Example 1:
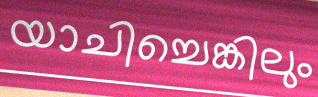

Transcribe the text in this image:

യാചിച്ചെങ്കിലും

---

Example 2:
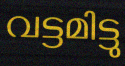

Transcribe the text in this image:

വട്ടമിട്ടു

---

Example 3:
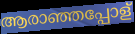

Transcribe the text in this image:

ആരാഞ്ഞപ്പോള്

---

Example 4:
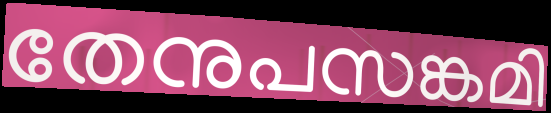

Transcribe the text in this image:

തേനുപസങ്കമി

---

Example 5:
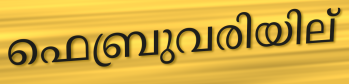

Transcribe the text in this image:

ഫെബ്രുവരിയില്